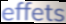
effets